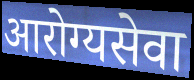
आरोग्यसेवा